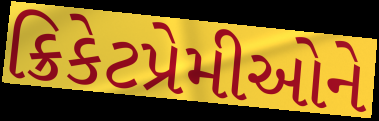
ક્રિકેટપ્રેમીઓને